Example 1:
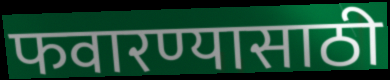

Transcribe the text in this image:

फवारण्यासाठी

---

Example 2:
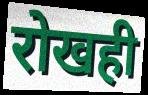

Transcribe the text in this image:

रोखही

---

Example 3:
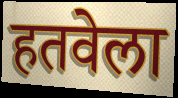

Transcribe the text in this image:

हतवेला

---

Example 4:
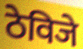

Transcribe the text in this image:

ठेविजे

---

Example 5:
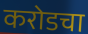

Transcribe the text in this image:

करोडचा